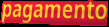
pagamento